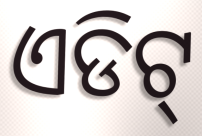
ଏଡିଟ୍